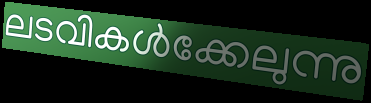
ലടവികൾക്കേലുന്നു